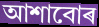
আশাবোৰ